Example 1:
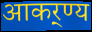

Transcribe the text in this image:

आकर्ण्य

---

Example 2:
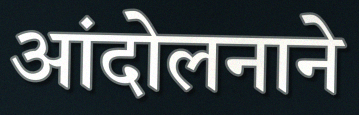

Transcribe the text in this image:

आंदोलनाने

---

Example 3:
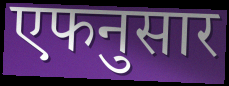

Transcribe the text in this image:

एफनुसार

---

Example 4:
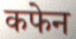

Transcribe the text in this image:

कफेन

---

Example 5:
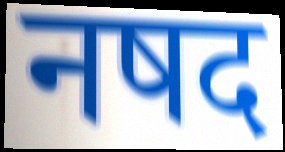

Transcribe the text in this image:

नषद